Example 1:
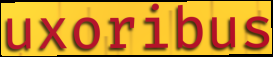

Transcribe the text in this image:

uxoribus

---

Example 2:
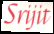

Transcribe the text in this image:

Srijit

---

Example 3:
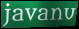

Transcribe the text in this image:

javanu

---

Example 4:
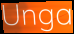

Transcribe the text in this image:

Unga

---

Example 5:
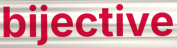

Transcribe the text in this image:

bijective